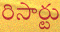
రిసార్టు